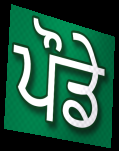
ਪੌਡੇ